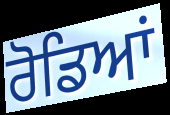
ਰੋਡਿਆਂ